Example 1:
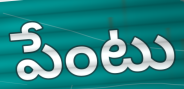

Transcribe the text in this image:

పేంటు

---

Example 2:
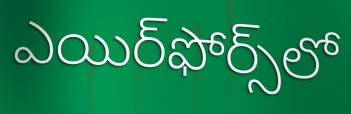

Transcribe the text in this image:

ఎయిర్‌ఫోర్స్‌లో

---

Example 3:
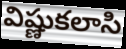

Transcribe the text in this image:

విష్ణుకలాసి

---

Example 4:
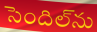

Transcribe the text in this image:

సెందిల్‌ను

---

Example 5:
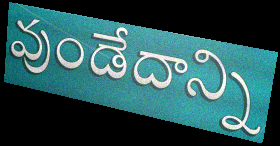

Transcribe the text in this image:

వుండేదాన్ని